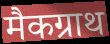
मैकग्राथ